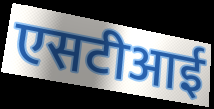
एसटीआई